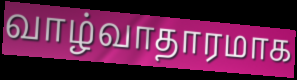
வாழ்வாதாரமாக